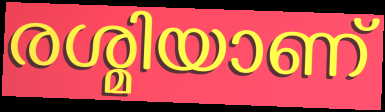
രശ്മിയാണ്